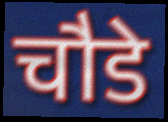
चौडे